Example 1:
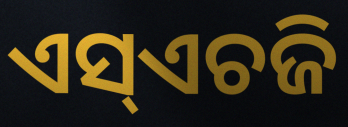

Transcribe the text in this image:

ଏସ୍ଏଚଜି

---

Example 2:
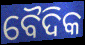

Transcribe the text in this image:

ବୈଦିକ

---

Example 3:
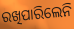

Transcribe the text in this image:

ରଖିପାରିଲେନି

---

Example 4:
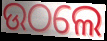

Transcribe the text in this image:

ଉଠଲେ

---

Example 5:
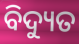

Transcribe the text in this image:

ବିଦ୍ୟୁତ